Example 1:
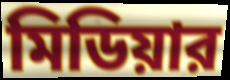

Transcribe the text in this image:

মিডিয়ার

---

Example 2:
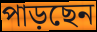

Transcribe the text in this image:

পাড়ছেন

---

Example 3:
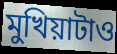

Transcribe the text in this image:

মুখিয়াটাও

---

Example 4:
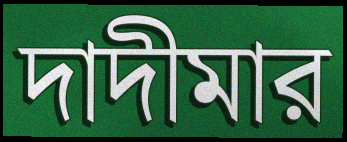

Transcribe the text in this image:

দাদীমার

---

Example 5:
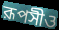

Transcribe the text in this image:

রূপসীও